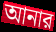
আনার